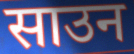
साउन